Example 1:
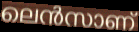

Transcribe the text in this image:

ലെൻസാണ്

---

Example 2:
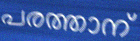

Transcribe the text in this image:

പരത്താന്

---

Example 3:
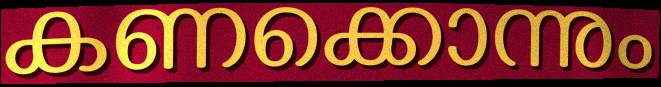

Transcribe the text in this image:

കണക്കൊന്നും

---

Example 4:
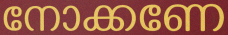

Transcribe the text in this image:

നോക്കണേ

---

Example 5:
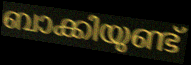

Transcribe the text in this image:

ബാക്കിയുണ്ട്